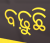
ବଢ଼ୁଛି